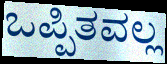
ಒಪ್ಪಿತವಲ್ಲ